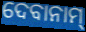
ଦେବାନାମ୍